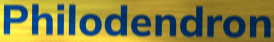
Philodendron